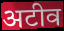
अटीव